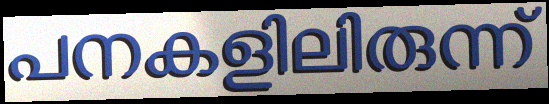
പനകളിലിരുന്ന്